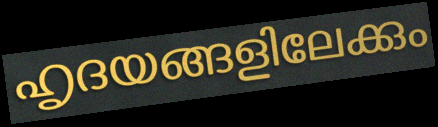
ഹൃദയങ്ങളിലേക്കും